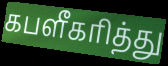
கபளீகரித்து